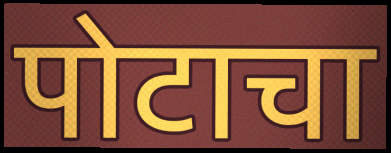
पोटाचा